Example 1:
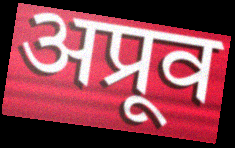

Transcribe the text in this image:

अप्रूव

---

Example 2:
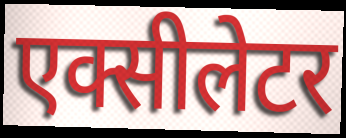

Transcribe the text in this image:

एक्सीलेटर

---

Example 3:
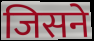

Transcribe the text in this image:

जिसने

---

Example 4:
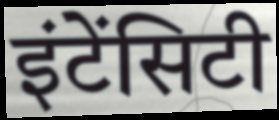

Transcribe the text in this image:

इंटेंसिटी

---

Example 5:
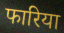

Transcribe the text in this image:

फारिया